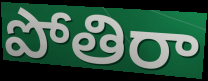
పోతిరా